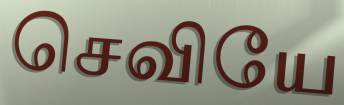
செவியே